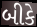
બીકે